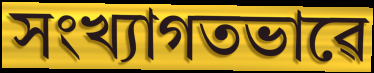
সংখ্যাগতভাৱে